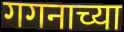
गगनाच्या